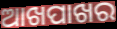
ଆଖପାଖର